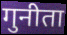
गुनीता